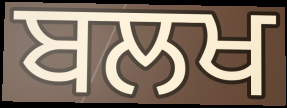
ਬਲਖ